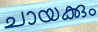
ചായക്കും